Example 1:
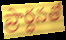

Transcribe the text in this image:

ప్రార్ధనతో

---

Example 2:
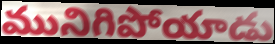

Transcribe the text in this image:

మునిగిపోయాడు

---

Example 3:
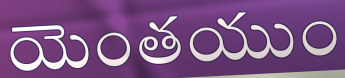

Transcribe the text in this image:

యెంతయుం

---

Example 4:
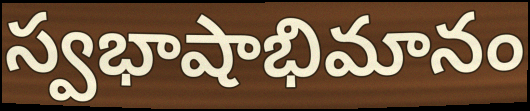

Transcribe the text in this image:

స్వభాషాభిమానం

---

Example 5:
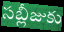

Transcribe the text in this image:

సబ్లీజుకు